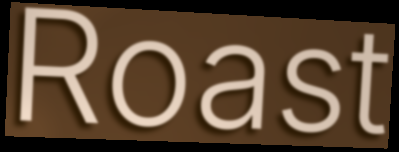
Roast